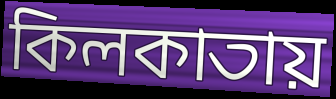
কিলকাতায়